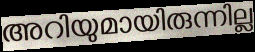
അറിയുമായിരുന്നില്ല